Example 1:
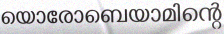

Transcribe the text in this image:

യൊരോബെയാമിന്റെ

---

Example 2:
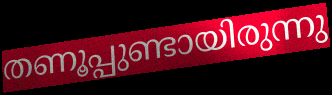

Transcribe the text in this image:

തണൂപ്പുണ്ടായിരുന്നു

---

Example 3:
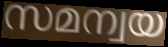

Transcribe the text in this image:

സമന്വയ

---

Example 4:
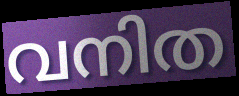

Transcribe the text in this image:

വനിത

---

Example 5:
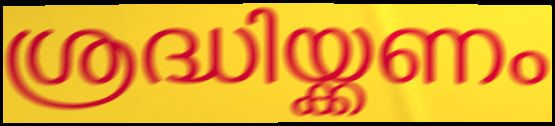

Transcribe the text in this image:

ശ്രദ്ധിയ്ക്കണം